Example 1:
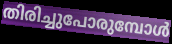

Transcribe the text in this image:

തിരിച്ചുപോരുമ്പോൾ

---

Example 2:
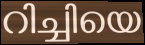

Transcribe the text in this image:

റിച്ചിയെ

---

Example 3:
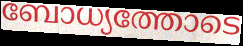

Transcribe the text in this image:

ബോധ്യത്തോടെ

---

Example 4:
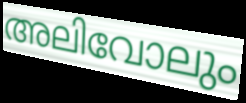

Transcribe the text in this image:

അലിവോലും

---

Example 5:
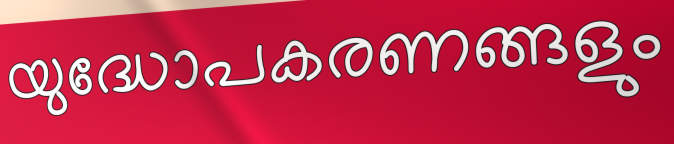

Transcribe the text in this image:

യുദ്ധോപകരണങ്ങളും